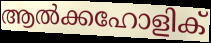
ആൽക്കഹോളിക്